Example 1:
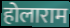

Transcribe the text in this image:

होलाराम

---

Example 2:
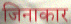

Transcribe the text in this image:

जिनाकार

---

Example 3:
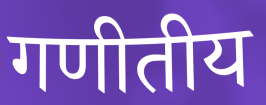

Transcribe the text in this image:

गणीतीय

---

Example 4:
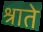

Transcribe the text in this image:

श्राते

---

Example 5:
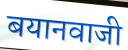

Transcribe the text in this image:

बयानवाजी